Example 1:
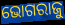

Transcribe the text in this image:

ଭୋଗରାଜୁ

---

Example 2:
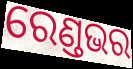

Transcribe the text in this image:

ରେଣ୍ଡଭର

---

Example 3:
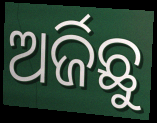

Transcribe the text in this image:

ଅର୍ଜିଛୁ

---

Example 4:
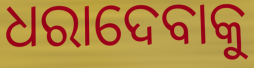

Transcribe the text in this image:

ଧରାଦେବାକୁ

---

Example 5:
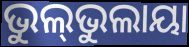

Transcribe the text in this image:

ଭୁଲ୍‌ଭୁଲାୟା